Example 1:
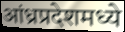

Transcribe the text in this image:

आंध्रप्रदेशमध्ये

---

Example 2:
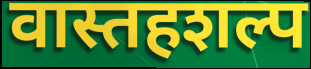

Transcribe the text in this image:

वास्तहशल्प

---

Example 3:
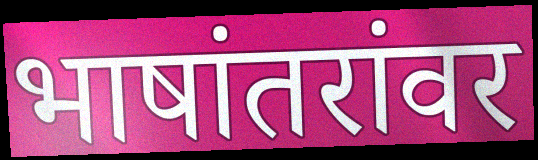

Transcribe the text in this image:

भाषांतरांवर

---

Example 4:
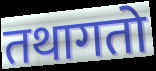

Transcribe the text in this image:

तथागतो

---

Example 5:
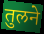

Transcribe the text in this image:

तुलने